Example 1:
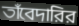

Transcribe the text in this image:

তাঁবেদারির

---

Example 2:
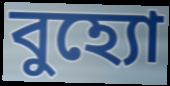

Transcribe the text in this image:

বুহ্যো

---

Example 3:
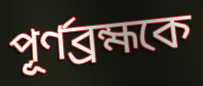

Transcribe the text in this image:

পূর্ণব্রহ্মকে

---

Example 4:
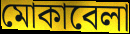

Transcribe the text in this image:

মোকাবেলা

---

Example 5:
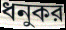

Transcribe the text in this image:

ধনুকর